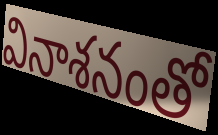
వినాశనంతో